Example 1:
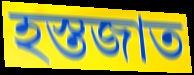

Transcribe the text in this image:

হস্তজাত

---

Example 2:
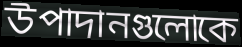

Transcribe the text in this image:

উপাদানগুলোকে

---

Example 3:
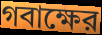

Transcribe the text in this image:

গবাক্ষের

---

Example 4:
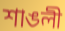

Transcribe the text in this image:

শাঙলী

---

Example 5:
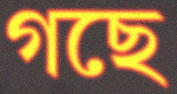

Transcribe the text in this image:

গছে